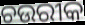
ଚଉରୀକ